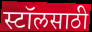
स्टॉलसाठी